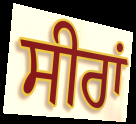
ਸੀਰਾਂ